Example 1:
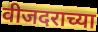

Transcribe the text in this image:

वीजदराच्या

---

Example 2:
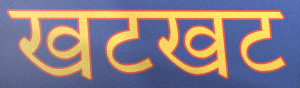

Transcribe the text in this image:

खटखट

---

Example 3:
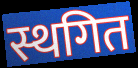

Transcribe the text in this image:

स्थगित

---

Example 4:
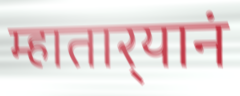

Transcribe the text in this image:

म्हातार्‍यानं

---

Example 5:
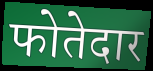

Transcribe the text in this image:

फोतेदार